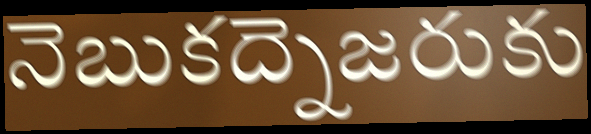
నెబుకద్నెజరుకు